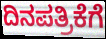
ದಿನಪತ್ರಿಕೆಗೆ